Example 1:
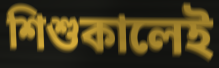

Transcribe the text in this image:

শিশুকালেই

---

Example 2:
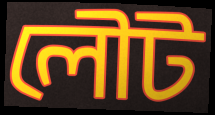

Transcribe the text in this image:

লৌট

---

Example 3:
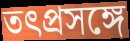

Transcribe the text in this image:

তৎপ্রসঙ্গে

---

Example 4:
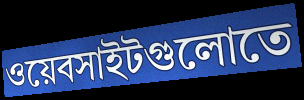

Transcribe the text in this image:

ওয়েবসাইটগুলোতে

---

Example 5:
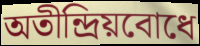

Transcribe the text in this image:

অতীন্দ্রিয়বোধে